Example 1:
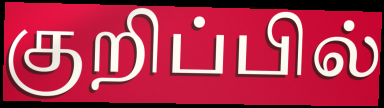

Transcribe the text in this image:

குறிப்பில்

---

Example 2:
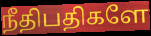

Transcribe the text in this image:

நீதிபதிகளே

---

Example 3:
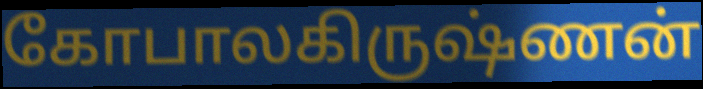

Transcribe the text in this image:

கோபாலகிருஷ்ணன்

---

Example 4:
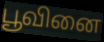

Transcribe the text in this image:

பூவினை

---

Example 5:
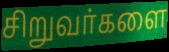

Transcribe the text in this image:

சிறுவர்களை